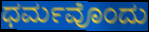
ಧರ್ಮವೊಂದು